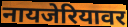
नायजेरियावर